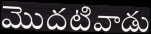
మొదటివాడు